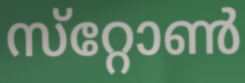
സ്‌റ്റോൺ